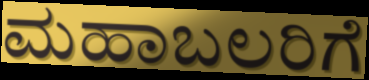
ಮಹಾಬಲರಿಗೆ